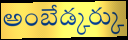
అంబేడ్కర్కు